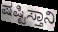
ಷಷ್ಟಿಸ್ತಾನಿ